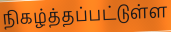
நிகழ்த்தப்பட்டுள்ள